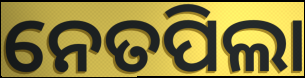
ନେତପିଲା